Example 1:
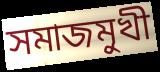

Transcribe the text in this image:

সমাজমুখী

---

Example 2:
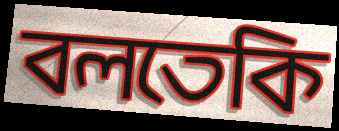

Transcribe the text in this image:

বলতেকি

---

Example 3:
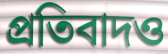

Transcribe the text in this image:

প্রতিবাদও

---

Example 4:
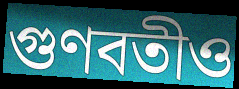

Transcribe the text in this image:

গুণবতীও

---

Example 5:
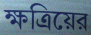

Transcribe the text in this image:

ক্ষত্রিয়ের